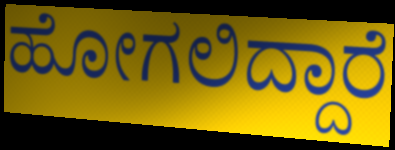
ಹೋಗಲಿದ್ದಾರೆ